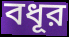
বধূর